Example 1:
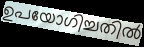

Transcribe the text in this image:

ഉപയോഗിച്ചതിൽ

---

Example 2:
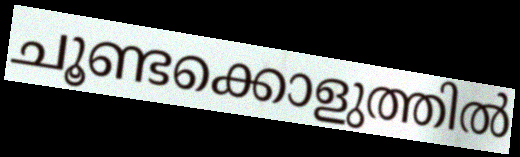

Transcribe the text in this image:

ചൂണ്ടക്കൊളുത്തിൽ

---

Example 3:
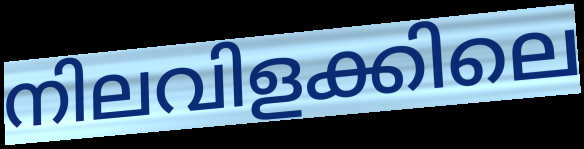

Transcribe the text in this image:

നിലവിളക്കിലെ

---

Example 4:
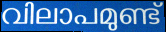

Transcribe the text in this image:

വിലാപമുണ്ട്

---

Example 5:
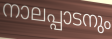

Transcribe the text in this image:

നാലപ്പാടനും